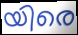
യിരെ